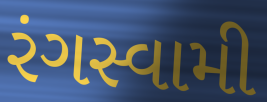
રંગસ્વામી